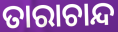
ତାରାଚାନ୍ଦ